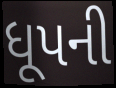
ધૂપની